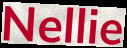
Nellie